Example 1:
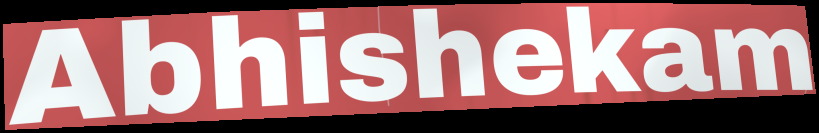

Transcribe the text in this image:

Abhishekam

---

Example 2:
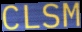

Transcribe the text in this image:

CLSM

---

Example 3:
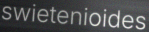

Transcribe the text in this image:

swietenioides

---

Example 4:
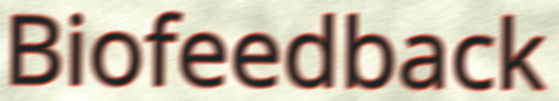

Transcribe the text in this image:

Biofeedback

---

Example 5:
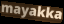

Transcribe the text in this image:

mayakka